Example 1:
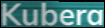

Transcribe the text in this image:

Kubera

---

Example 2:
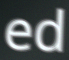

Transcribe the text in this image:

ed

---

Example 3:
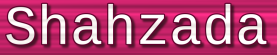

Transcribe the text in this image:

Shahzada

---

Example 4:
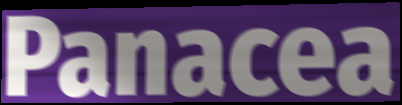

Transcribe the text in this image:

Panacea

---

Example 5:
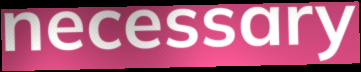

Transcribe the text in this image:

necessary